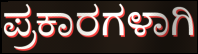
ಪ್ರಕಾರಗಳಾಗಿ